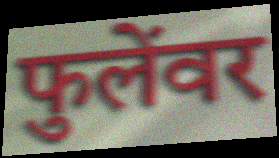
फुलेंवर